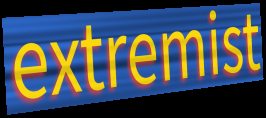
extremist